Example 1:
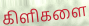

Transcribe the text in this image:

கிளிகளை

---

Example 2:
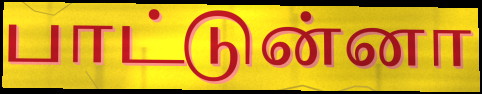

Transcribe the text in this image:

பாட்டுன்னா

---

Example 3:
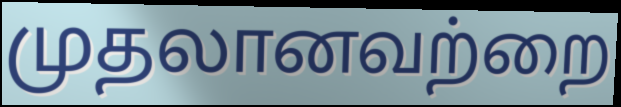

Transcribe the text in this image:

முதலானவற்றை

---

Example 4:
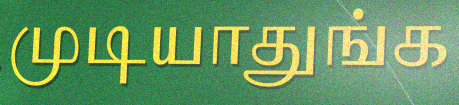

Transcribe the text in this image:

முடியாதுங்க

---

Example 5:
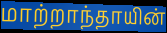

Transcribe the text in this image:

மாற்றாந்தாயின்